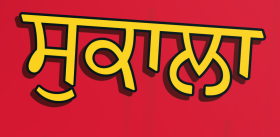
ਸੁਕਾਲਾ